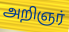
அறிஞர்